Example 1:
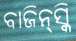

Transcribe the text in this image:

ବାଜିନ୍‌ସ୍କି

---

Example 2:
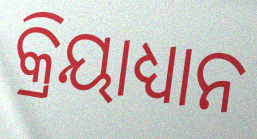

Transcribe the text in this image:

କ୍ରିୟାଧ୍ୟାନ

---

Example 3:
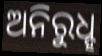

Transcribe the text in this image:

ଅନିରୁଧ୍ହ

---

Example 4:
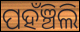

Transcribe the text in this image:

ପହଁଞ୍ଚିଲି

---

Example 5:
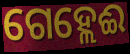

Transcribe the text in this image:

ଗେହ୍ଲେଈ